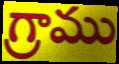
గ్రాము